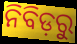
ନିବିଡ଼ରୁ